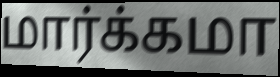
மார்க்கமா